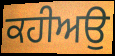
ਕਹੀਅਉ